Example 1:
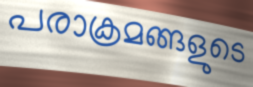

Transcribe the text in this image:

പരാക്രമങ്ങളുടെ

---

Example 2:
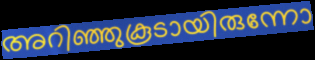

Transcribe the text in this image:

അറിഞ്ഞുകൂടായിരുന്നോ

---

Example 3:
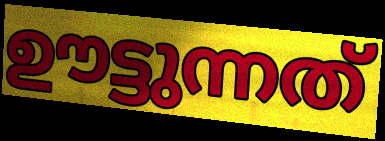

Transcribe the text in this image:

ഊട്ടുന്നത്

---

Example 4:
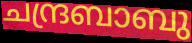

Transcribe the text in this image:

ചന്ദ്രബാബു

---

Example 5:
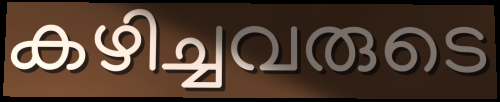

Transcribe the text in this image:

കഴിച്ചവരുടെ